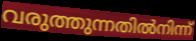
വരുത്തുന്നതിൽനിന്ന്